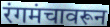
रंगमंचावरून